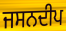
ਜਸਨਦੀਪ